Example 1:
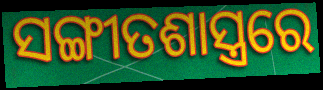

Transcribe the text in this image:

ସଙ୍ଗୀତଶାସ୍ତ୍ରରେ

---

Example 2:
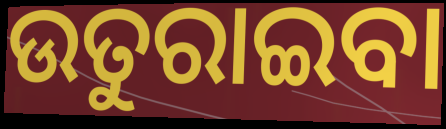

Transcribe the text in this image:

ଉତୁରାଇବା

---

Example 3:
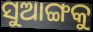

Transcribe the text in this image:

ସୁଆଙ୍ଗକୁ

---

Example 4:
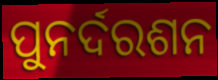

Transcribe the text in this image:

ପୁନର୍ଦରଶନ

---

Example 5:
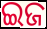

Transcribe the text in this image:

ଇଜ